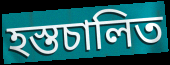
হস্তচালিত